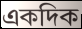
একদিক